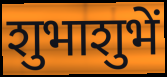
शुभाशुभें